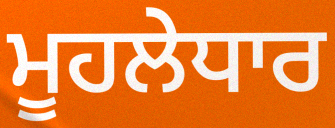
ਮੂਹਲੇਧਾਰ